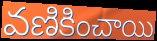
వణికించాయి